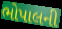
ભોપાલની